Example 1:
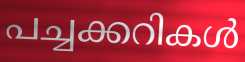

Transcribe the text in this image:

പച്ചക്കറികൾ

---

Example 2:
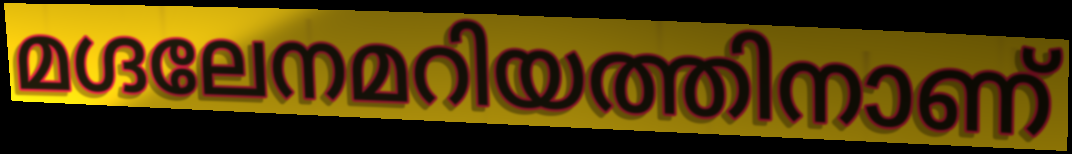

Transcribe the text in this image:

മഗ്ദലേനമറിയത്തിനാണ്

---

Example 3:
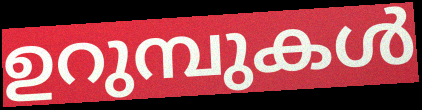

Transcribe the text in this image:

ഉറുമ്പുകൾ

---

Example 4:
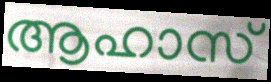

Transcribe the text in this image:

ആഹാസ്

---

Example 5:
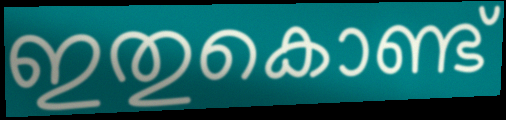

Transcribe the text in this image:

ഇതുകൊണ്ട്